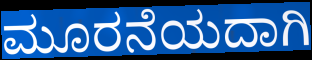
ಮೂರನೆಯದಾಗಿ